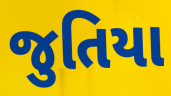
જુતિયા